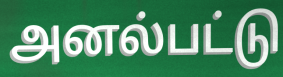
அனல்பட்டு